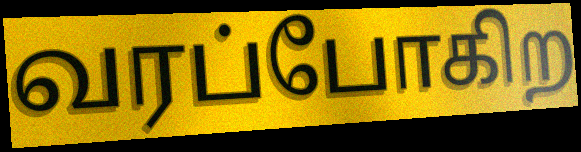
வரப்போகிற